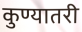
कुण्यातरी